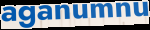
aganumnu